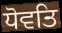
ਧੋਵਤਿ